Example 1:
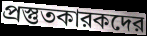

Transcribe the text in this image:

প্রস্তুতকারকদের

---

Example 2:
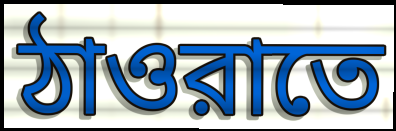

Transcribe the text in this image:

ঠাওরাতে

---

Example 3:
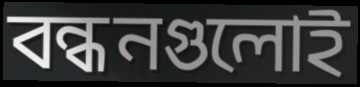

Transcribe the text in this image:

বন্ধনগুলোই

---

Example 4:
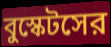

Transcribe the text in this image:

বুস্কেটসের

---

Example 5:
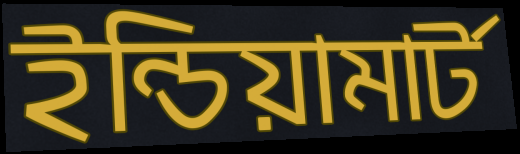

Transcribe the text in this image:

ইন্ডিয়ামার্ট